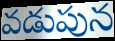
వడుపున